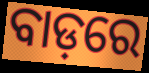
ବାଡ଼ରେ